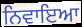
ਨਿਵਾਇਆ